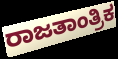
ರಾಜತಾಂತ್ರಿಕ